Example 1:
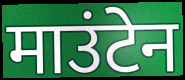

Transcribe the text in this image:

माउंटेन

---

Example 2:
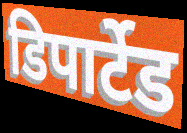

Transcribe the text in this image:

डिपार्टेड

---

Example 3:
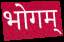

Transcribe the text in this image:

भोगम्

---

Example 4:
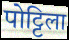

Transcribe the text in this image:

पोट्टिला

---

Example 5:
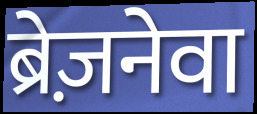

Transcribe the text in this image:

ब्रेज़नेवा